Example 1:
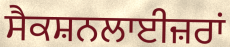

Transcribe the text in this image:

ਸੈਕਸ਼ਨਲਾਈਜ਼ਰਾਂ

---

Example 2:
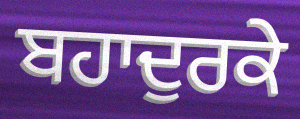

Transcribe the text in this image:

ਬਹਾਦੁਰਕੇ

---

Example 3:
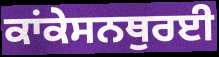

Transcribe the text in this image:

ਕਾਂਕੇਸਨਥੁਰਈ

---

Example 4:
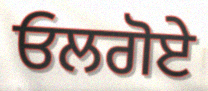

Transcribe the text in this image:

ਓਲਗੋਏ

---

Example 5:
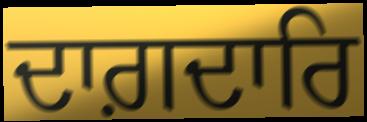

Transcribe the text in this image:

ਦਾਗ਼ਦਾਰਿ